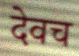
देवच